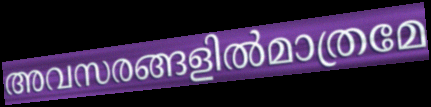
അവസരങ്ങളിൽമാത്രമേ